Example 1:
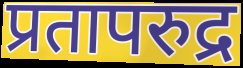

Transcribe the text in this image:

प्रतापरुद्र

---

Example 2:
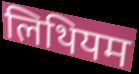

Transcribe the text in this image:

लिथियम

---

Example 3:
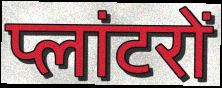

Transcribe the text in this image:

प्लांटरों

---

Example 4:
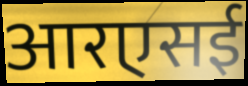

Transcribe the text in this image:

आरएसई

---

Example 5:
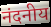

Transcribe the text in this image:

नंदनीय